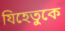
যিহেতুকে